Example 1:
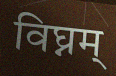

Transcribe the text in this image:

विघ्नम्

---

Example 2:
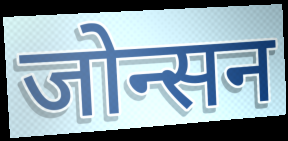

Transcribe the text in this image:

जोन्सन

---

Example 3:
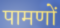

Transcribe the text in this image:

पामणों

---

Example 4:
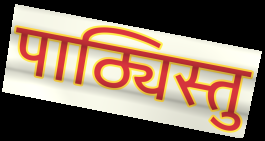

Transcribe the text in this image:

पाठ्यिस्तु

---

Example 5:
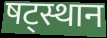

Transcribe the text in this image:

षट्स्थान